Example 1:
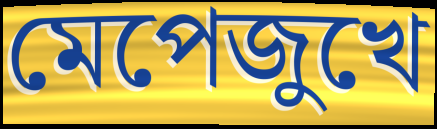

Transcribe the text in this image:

মেপেজুখে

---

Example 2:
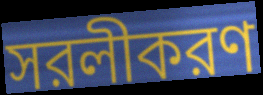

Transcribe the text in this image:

সরলীকরণ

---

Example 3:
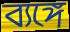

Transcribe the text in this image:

ব্যঙ্গে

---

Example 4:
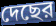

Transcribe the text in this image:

দেছের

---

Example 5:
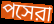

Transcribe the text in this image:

পসেরা